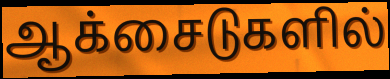
ஆக்சைடுகளில்